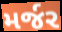
મર્જર